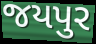
જયપુર